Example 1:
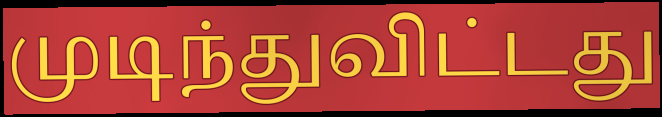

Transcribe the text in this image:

முடிந்துவிட்டது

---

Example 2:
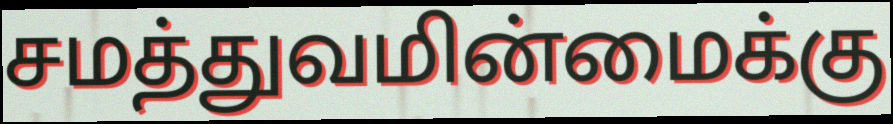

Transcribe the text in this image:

சமத்துவமின்மைக்கு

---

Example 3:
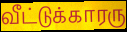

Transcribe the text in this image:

வீட்டுக்காரரு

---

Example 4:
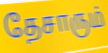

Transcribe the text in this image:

தேசாரும்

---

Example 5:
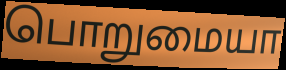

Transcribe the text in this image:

பொறுமையா